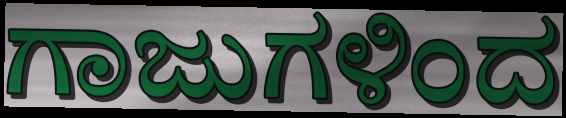
ಗಾಜುಗಳಿಂದ